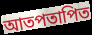
আতপতাপিত